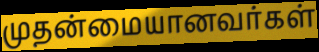
முதன்மையானவர்கள்